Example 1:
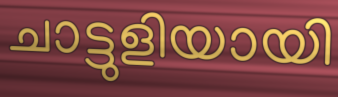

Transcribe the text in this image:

ചാട്ടുളിയായി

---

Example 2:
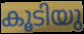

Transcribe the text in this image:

കൂടിയു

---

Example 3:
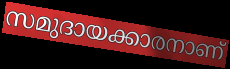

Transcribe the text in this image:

സമുദായക്കാരനാണ്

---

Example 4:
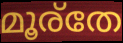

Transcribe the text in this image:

മൂര്തേ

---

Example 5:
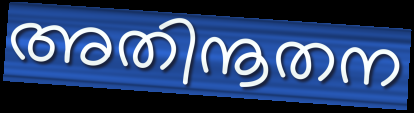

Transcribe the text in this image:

അതിനൂതന